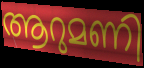
ആറുമണി